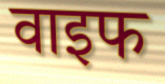
वाइफ